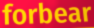
forbear